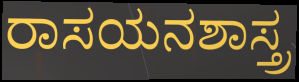
ರಾಸಯನಶಾಸ್ತ್ರ